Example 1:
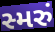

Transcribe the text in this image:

સ્મરું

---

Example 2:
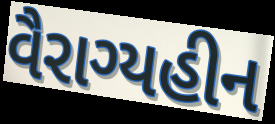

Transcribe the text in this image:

વૈરાગ્યહીન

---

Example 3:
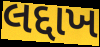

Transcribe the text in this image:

લદ્દાખ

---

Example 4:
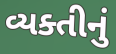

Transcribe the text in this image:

વ્યક્તીનું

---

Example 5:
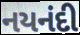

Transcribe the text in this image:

નયનંદી